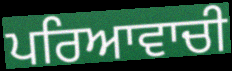
ਪਰਿਆਵਾਚੀ